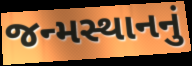
જન્મસ્થાનનું